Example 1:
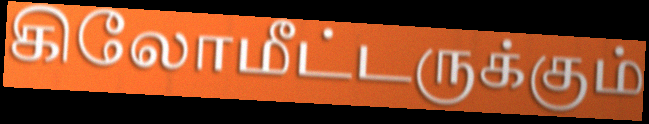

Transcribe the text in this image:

கிலோமீட்டருக்கும்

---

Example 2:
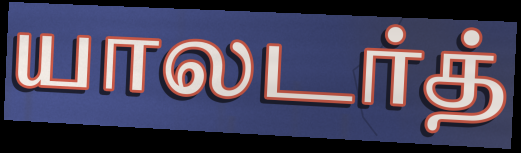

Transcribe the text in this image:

யாலடர்த்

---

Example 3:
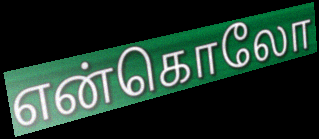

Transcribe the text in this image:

என்கொலோ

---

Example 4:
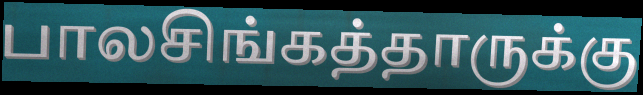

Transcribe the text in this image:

பாலசிங்கத்தாருக்கு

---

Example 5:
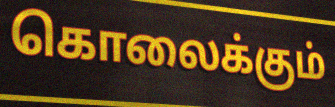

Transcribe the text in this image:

கொலைக்கும்